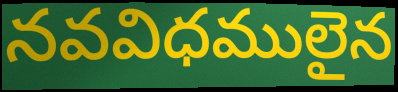
నవవిధములైన